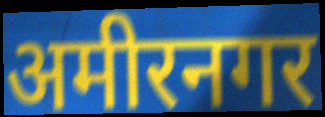
अमीरनगर